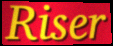
Riser